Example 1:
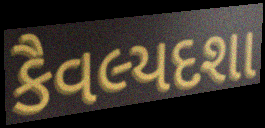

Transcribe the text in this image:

કૈવલ્યદશા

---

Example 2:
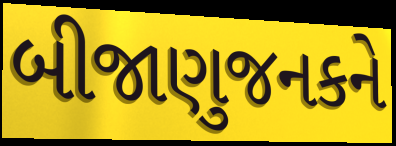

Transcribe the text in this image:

બીજાણુજનકને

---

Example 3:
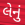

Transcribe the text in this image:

લેનું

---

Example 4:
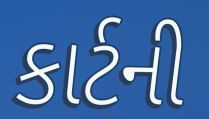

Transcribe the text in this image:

કાર્ટની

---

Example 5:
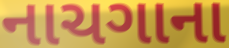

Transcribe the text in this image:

નાચગાના